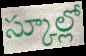
స్కూల్లో